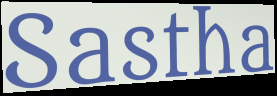
Sastha